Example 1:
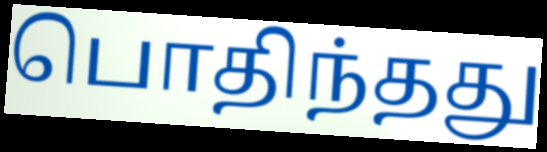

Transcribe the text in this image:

பொதிந்தது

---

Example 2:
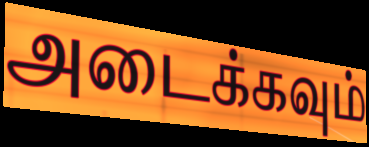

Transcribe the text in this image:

அடைக்கவும்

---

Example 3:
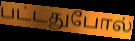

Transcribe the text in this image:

பட்டதுபோல்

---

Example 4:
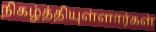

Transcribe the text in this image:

நிகழ்த்தியுள்ளார்கள்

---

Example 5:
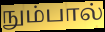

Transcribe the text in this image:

நும்பால்